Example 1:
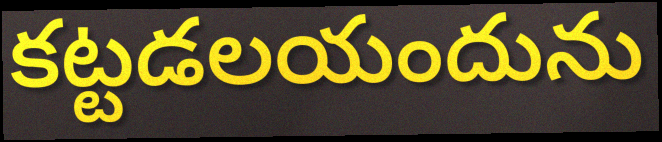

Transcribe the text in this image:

కట్టడలయందును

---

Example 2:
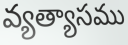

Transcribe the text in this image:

వ్యత్యాసము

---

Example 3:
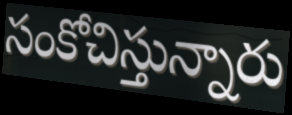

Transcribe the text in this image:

సంకోచిస్తున్నారు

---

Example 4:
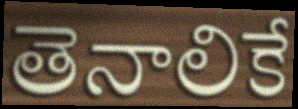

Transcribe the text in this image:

తెనాలికే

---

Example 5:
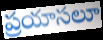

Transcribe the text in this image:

ప్రయాసలూ